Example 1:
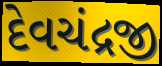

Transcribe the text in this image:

દેવચંદ્રજી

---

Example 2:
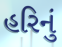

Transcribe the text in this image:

હરિનું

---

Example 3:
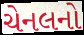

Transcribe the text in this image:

ચેનલનો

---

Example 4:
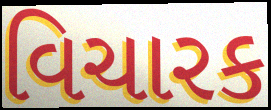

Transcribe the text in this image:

વિચારક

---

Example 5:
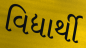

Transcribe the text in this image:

વિદ્યાર્થી